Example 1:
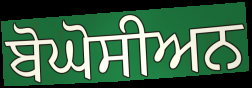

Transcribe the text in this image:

ਬੋਘੋਸੀਅਨ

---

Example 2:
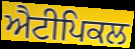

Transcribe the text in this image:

ਐਟੀਪਿਕਲ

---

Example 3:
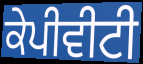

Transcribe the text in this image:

ਕੇਪੀਵੀਟੀ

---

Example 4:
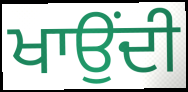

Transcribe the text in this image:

ਖਾਉਂਦੀ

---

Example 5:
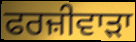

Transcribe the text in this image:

ਫਰਜ਼ੀਵਾਡ਼ਾ